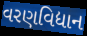
વરણવિદ્યાન